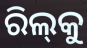
ରିଲ୍‌କୁ